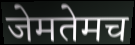
जेमतेमच